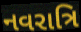
નવરાત્રિ